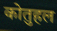
कोतुहल